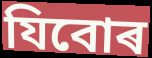
যিবোৰ